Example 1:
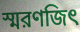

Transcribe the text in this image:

স্মরণজিৎ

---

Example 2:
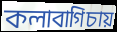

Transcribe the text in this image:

কলাবাগিচায়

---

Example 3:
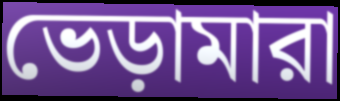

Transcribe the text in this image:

ভেড়ামারা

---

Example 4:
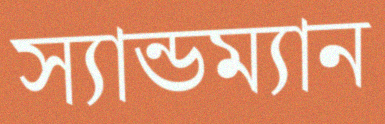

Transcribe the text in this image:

স্যান্ডম্যান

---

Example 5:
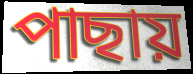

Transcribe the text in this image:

পাছায়